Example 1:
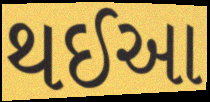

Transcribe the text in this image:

થઈઆ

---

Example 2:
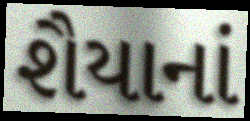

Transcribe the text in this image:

શૈયાનાં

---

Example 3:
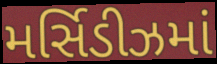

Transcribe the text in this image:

મર્સિડીઝમાં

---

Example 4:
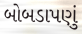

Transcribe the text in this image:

બોબડાપણું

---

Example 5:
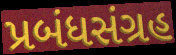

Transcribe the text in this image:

પ્રબંધસંગ્રહ